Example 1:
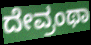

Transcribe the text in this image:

ದೇವ್ರಂಥಾ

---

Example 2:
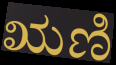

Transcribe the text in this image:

ಋಣಿ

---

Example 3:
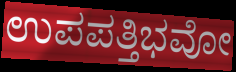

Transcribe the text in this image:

ಉಪಪತ್ತಿಭವೋ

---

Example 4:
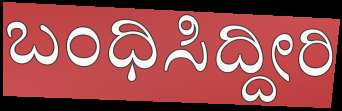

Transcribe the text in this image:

ಬಂಧಿಸಿದ್ದೀರಿ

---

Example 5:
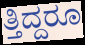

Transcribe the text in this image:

ತ್ತಿದ್ದರೂ